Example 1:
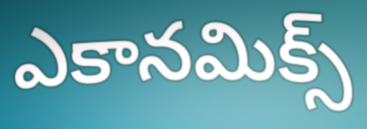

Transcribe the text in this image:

ఎకానమిక్స్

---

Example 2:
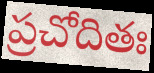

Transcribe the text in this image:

ప్రచోదితః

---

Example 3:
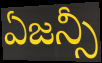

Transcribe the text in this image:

ఏజన్సీ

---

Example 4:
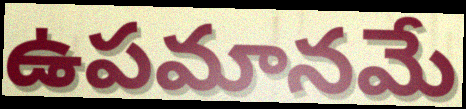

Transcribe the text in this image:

ఉపమానమే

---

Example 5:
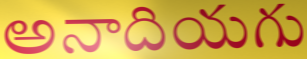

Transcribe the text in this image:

అనాదియగు